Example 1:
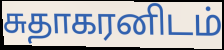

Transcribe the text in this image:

சுதாகரனிடம்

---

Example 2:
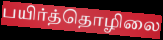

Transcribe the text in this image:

பயிர்த்தொழிலை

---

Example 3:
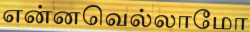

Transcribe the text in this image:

என்னவெல்லாமோ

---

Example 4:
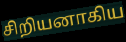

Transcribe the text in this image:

சிறியனாகிய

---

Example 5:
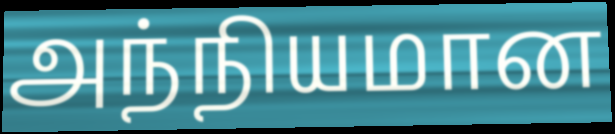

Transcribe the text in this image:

அந்நியமான